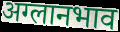
अग्लानभाव